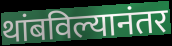
थांबविल्यानंतर